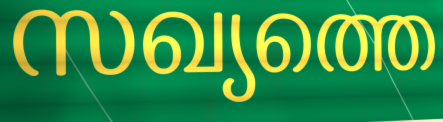
സഖ്യത്തെ